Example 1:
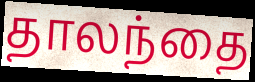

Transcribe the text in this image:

தாலந்தை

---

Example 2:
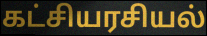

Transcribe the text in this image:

கட்சியரசியல்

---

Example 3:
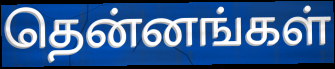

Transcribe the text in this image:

தென்னங்கள்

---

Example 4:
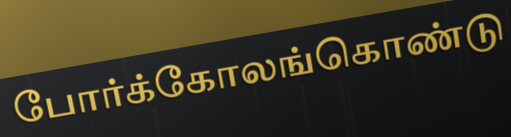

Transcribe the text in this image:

போர்க்கோலங்கொண்டு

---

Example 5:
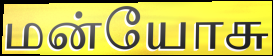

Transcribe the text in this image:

மன்யோசு